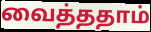
வைத்ததாம்